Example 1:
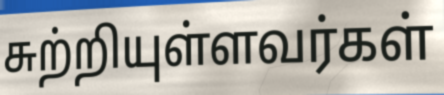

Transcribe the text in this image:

சுற்றியுள்ளவர்கள்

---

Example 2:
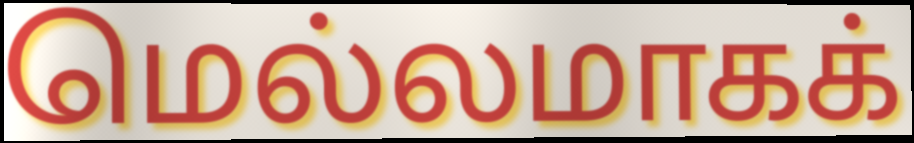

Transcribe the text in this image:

மெல்லமாகக்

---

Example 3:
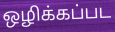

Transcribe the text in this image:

ஒழிக்கப்பட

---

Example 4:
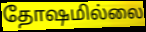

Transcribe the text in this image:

தோஷமில்லை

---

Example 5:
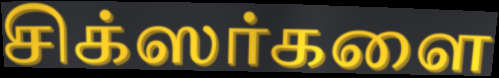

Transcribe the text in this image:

சிக்ஸர்களை